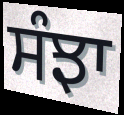
ਸੰਝਾ